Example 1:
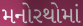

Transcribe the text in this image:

મનોરથોમાં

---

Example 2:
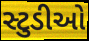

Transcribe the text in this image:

સ્ટુડીઓ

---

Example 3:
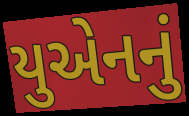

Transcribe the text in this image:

યુએનનું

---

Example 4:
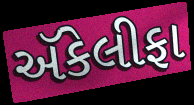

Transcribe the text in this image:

ઍકેલીફા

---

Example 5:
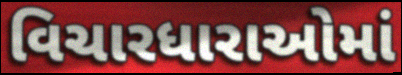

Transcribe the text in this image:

વિચારધારાઓમાં